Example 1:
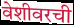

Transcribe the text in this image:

वेशीवरची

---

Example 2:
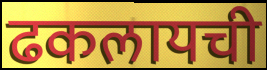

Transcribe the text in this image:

ढकलायची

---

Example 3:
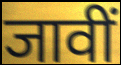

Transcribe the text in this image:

जावीं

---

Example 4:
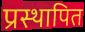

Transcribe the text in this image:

प्रस्थापित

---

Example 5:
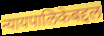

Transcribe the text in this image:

न्यायपालिकेबद्दल